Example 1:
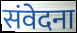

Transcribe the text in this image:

संवेदना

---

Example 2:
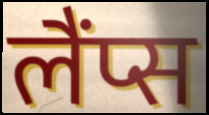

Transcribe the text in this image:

लैंप्स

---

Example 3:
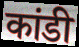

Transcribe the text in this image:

कांडी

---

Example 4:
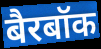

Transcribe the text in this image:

बैरबॉक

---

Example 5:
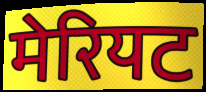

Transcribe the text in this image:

मेरियट